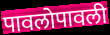
पावलोपावली